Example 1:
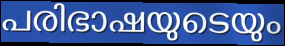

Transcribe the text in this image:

പരിഭാഷയുടെയും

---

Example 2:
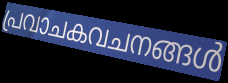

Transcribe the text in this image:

പ്രവാചകവചനങ്ങൾ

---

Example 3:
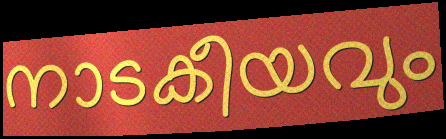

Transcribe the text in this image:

നാടകീയവും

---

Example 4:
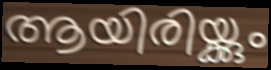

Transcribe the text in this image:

ആയിരിയ്ക്കും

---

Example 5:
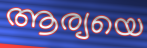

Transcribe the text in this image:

ആര്യയെ